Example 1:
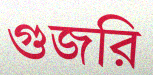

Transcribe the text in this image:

গুজরি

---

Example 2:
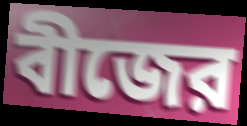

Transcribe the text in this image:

বীজের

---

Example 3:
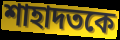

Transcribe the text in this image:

শাহাদতকে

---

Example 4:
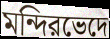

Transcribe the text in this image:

মন্দিরভেদে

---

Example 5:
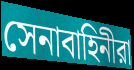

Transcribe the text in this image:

সেনাবাহিনীরা